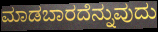
ಮಾಡಬಾರದೆನ್ನುವುದು